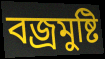
বজ্রমুষ্টি